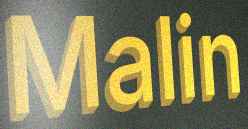
Malin